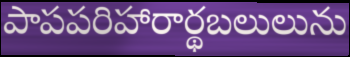
పాపపరిహారార్థబలులును